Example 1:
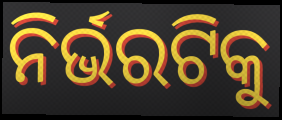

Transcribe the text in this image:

ନିର୍ଭରଟିକୁ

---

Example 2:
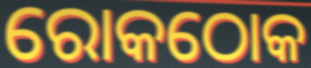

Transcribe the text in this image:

ରୋକଠୋକ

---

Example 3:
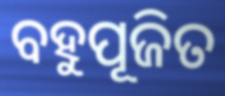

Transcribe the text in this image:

ବହୁପୂଜିତ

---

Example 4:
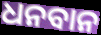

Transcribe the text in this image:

ଧନବାନ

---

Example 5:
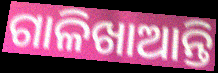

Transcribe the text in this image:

ଗାଳିଖାଆନ୍ତି